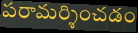
పరామర్శించడం